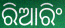
ରିଆରିଂ